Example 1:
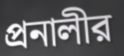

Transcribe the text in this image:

প্রনালীর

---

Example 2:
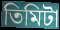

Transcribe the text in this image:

তিমিটা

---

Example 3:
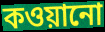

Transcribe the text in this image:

কওয়ানো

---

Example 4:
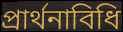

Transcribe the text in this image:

প্রার্থনাবিধি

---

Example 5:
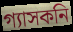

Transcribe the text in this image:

গ্যাসকনি